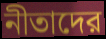
নীতাদের